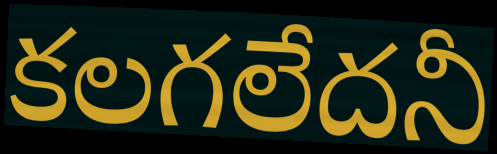
కలగలేదనీ